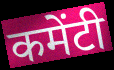
कमेंटी